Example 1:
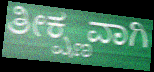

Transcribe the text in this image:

ತೀಕ್ಷ್ಣವಾಗಿ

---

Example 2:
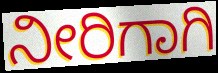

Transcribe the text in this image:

ನೀರಿಗಾಗಿ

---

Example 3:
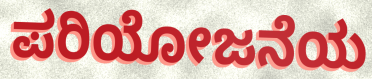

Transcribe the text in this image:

ಪರಿಯೋಜನೆಯ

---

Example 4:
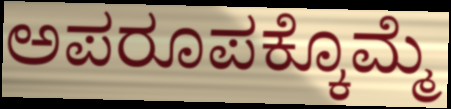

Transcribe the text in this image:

ಅಪರೂಪಕ್ಕೊಮ್ಮೆ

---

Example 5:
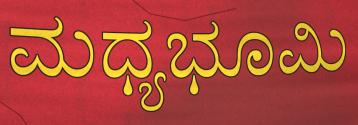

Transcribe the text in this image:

ಮಧ್ಯಭೂಮಿ